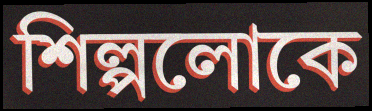
শিল্পলোকে